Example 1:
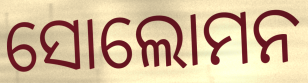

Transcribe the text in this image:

ସୋଲୋମନ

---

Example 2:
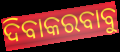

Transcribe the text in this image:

ଦିବାକରବାବୁ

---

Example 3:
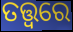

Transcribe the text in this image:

ତତ୍ତ୍ୱରେ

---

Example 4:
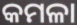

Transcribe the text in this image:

କମଳା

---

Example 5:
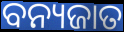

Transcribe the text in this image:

ବନ୍ୟଜାତ